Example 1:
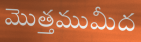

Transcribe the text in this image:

మొత్తముమీద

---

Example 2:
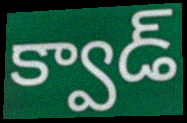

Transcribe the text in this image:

క్వాడ్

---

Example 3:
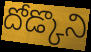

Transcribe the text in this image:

దోడ్కొని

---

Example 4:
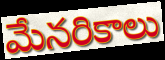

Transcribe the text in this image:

మేనరికాలు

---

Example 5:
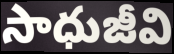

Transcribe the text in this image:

సాధుజీవి